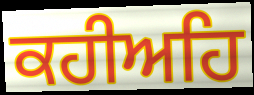
ਕਹੀਅਹਿ